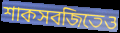
শাকসবজিতেও